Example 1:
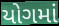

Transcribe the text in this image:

યોગમાં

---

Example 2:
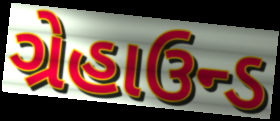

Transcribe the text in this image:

ગ્રેહાઉન્ડ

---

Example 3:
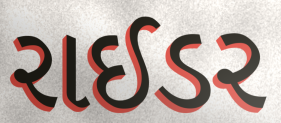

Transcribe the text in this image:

રાઈડર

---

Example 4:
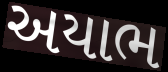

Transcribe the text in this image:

અયાભ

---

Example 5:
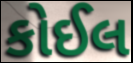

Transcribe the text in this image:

કોઈલ